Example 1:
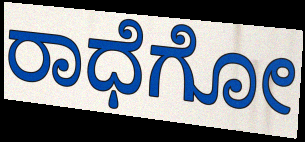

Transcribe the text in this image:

ರಾಧೆಗೋ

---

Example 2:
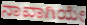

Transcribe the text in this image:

ನಾವಾಗಿಯೇ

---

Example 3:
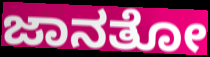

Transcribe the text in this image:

ಜಾನತೋ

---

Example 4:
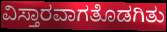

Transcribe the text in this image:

ವಿಸ್ತಾರವಾಗತೊಡಗಿತು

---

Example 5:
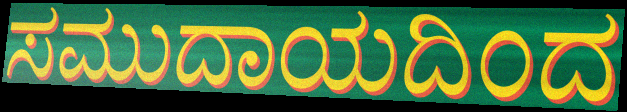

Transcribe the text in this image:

ಸಮುದಾಯದಿಂದ